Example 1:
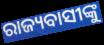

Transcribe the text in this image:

ରାଜ୍ୟବାସୀଙ୍କୁ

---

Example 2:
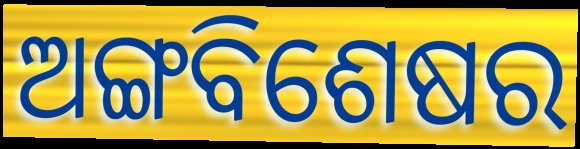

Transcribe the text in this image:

ଅଙ୍ଗବିଶେଷର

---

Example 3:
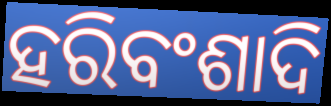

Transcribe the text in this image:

ହରିବଂଶାଦି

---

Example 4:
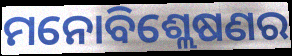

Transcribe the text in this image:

ମନୋବିଶ୍ଲେଷଣର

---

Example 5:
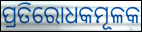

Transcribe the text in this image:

ପ୍ରତିରୋଧକମୂଳକ